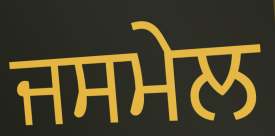
ਜਸਮੇਲ